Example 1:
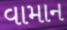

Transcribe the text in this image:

વામાન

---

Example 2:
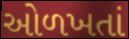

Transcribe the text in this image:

ઓળખતાં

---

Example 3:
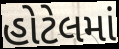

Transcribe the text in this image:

હોટેલમાં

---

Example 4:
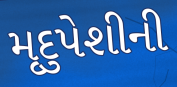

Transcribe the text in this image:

મૃદુપેશીની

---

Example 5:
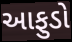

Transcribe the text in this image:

આફુડો